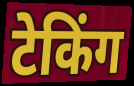
टेकिंग